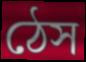
ঠেস